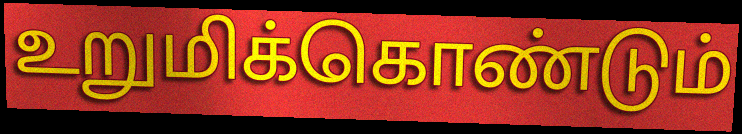
உறுமிக்கொண்டும்